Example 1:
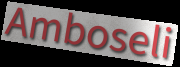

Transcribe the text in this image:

Amboseli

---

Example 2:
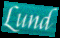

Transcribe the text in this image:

Lund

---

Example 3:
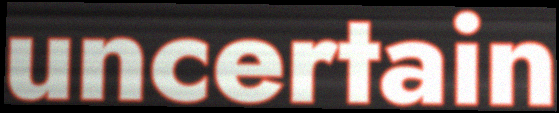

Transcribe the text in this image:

uncertain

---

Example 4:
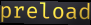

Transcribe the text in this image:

preload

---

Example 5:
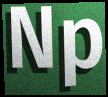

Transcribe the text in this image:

Np